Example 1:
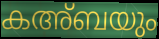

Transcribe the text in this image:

കഅ്ബയും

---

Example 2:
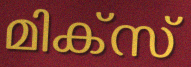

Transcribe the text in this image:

മിക്‌സ്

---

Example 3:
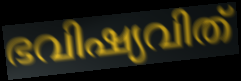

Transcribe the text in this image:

ഭവിഷ്യവിത്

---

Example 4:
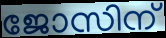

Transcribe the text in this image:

ജോസിന്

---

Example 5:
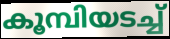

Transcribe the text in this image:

കൂമ്പിയടച്ച്